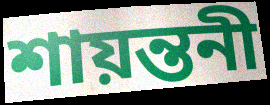
শায়ন্তনী